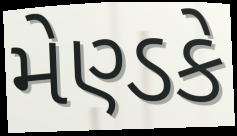
મેણ્ડકે